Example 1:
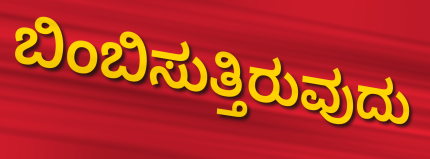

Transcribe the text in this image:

ಬಿಂಬಿಸುತ್ತಿರುವುದು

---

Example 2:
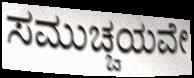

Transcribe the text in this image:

ಸಮುಚ್ಚಯವೇ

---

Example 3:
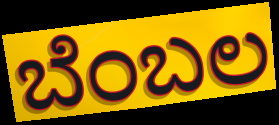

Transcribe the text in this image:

ಬೆಂಬಲ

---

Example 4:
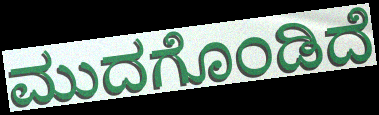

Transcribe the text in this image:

ಮುದಗೊಂಡಿದೆ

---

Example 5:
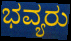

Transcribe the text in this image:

ಭವ್ಯರು